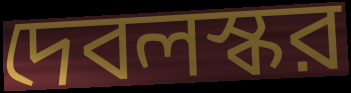
দেবলস্কর